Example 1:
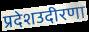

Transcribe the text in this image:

प्रदेशउदीरणा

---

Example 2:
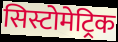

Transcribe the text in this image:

सिस्टोमेट्रिक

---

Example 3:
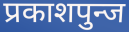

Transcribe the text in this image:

प्रकाशपुन्ज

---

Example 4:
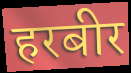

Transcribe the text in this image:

हरबीर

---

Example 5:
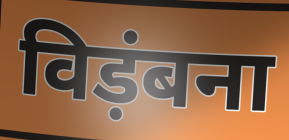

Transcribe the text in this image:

विड़ंबना